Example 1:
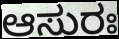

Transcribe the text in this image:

ಆಸುರಃ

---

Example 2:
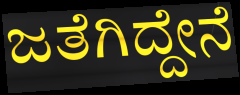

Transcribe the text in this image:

ಜತೆಗಿದ್ದೇನೆ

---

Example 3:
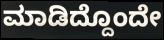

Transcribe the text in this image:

ಮಾಡಿದ್ದೊಂದೇ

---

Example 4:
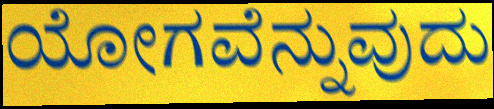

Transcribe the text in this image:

ಯೋಗವೆನ್ನುವುದು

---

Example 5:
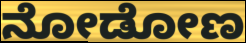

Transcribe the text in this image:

ನೋಡೋಣ